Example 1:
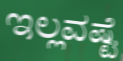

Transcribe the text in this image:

ಇಲ್ಲವಷ್ಟೆ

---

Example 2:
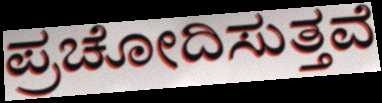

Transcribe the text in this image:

ಪ್ರಚೋದಿಸುತ್ತವೆ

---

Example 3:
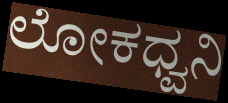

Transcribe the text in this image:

ಲೋಕಧ್ವನಿ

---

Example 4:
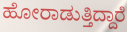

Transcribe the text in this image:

ಹೋರಾಡುತ್ತಿದ್ದಾರೆ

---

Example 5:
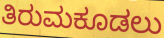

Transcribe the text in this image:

ತಿರುಮಕೂಡಲು